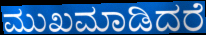
ಮುಖಮಾಡಿದರೆ